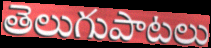
తెలుగుపాటలు